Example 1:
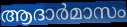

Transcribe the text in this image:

ആദാർമാസം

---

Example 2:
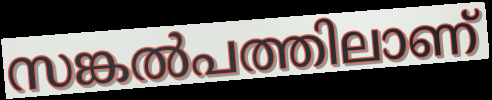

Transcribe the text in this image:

സങ്കൽപത്തിലാണ്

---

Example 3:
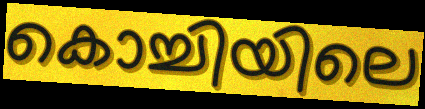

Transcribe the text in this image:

കൊച്ചിയിലെ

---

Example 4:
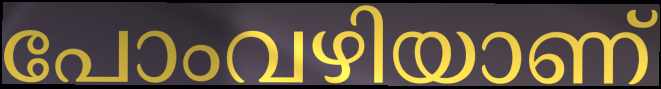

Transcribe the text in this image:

പോംവഴിയാണ്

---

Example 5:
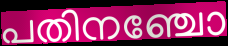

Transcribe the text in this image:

പതിനഞ്ചോ